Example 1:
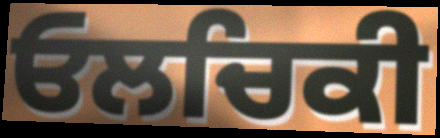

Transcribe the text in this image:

ਓਲਚਿਕੀ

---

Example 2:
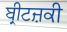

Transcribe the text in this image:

ਬ੍ਰੀਟਜ਼ਕੀ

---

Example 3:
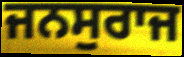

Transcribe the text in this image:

ਜਨਸੁਰਾਜ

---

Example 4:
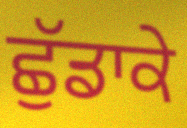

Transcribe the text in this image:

ਛੁੱਡਾਕੇ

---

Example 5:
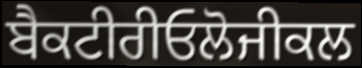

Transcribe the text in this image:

ਬੈਕਟੀਰੀਓਲੋਜੀਕਲ